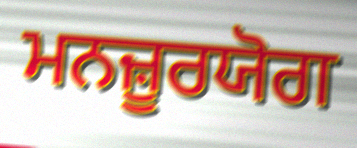
ਮਨਜ਼ੂਰਯੋਗ